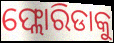
ଫ୍ଲୋରିଡାକୁ